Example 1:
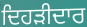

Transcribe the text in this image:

ਦਿਹੜੀਦਾਰ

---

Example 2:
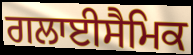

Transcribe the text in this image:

ਗਲਾਈਸੈਮਿਕ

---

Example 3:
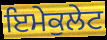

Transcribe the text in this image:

ਇਮੇਕੁਲੇਟ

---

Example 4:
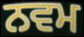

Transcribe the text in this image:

ਨਵਮ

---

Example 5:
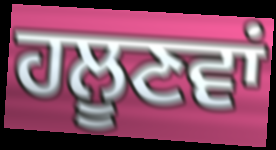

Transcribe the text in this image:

ਹਲੂਣਵਾਂ